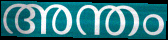
അന്തം